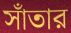
সাঁতার